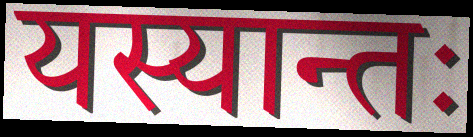
यस्यान्तः